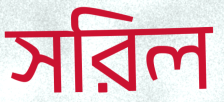
সরিল